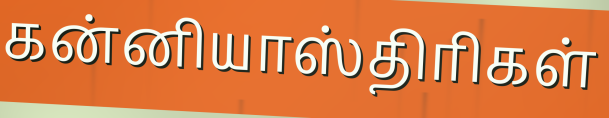
கன்னியாஸ்திரிகள்